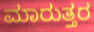
ಮಾರುತ್ತರ